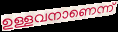
ഉള്ളവനാണെന്ന്